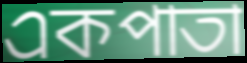
একপাতা